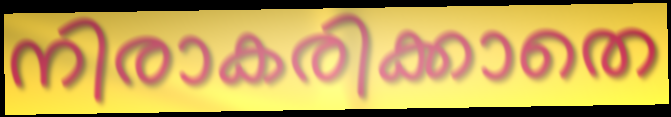
നിരാകരിക്കാതെ